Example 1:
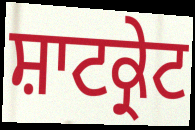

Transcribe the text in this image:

ਸ਼ਾਟਕ੍ਰੇਟ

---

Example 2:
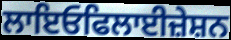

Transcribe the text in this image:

ਲਾਇਓਫਿਲਾਈਜ਼ੇਸ਼ਨ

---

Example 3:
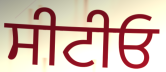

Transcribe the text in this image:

ਸੀਟੀਓ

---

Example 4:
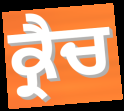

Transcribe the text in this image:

ਕ੍ਰੈਚ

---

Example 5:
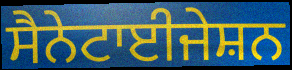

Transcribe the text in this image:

ਸੈਨੇਟਾਈਜੇਸ਼ਨ